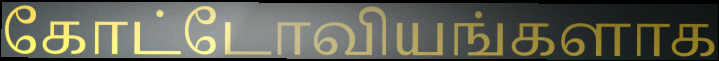
கோட்டோவியங்களாக